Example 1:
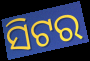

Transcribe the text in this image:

ସିଟର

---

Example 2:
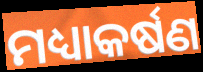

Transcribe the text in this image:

ମଧ୍ୟାକର୍ଷଣ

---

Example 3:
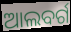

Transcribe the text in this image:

ଆଲବର୍ଗ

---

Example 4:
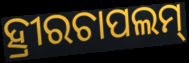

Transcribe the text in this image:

ହ୍ରୀରଚାପଲମ୍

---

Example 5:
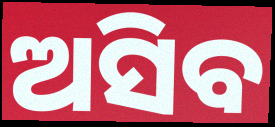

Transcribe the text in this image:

ଅସିବ